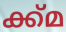
ക്ക്മ